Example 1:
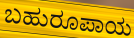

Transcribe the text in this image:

ಬಹುರೂಪಾಯ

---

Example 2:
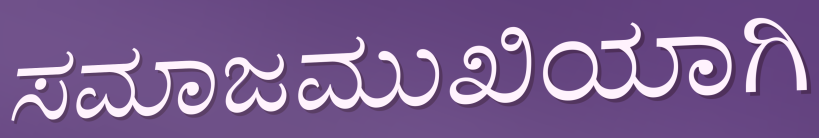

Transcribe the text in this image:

ಸಮಾಜಮುಖಿಯಾಗಿ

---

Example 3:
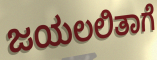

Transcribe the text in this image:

ಜಯಲಲಿತಾಗೆ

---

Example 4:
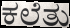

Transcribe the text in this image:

ಕಲೆತು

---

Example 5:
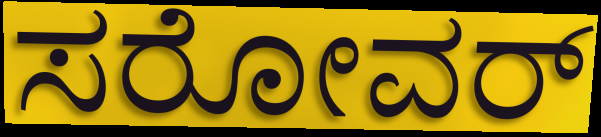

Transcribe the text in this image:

ಸರೋವರ್